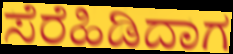
ಸೆರೆಹಿಡಿದಾಗ